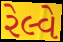
રેલ્વે